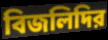
বিজলিদির